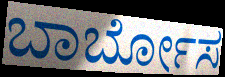
ಬಾರ್ಬೋಸ